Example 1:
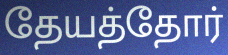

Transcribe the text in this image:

தேயத்தோர்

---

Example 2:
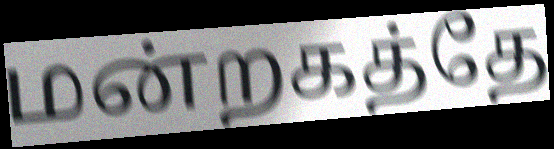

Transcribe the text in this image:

மன்றகத்தே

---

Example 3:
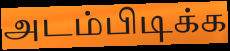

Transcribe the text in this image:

அடம்பிடிக்க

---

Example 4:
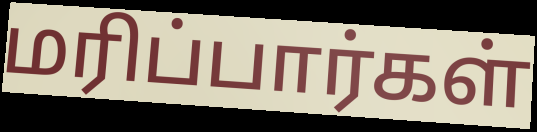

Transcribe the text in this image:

மரிப்பார்கள்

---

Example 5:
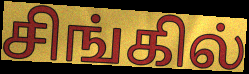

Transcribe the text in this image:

சிங்கில்